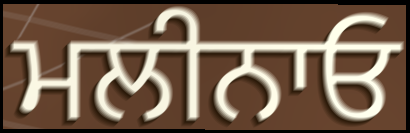
ਮਲੀਨਾਓ